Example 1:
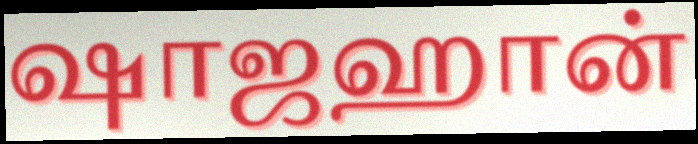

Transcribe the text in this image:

ஷாஜஹான்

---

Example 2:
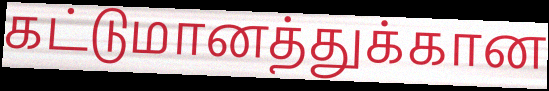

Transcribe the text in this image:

கட்டுமானத்துக்கான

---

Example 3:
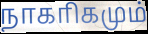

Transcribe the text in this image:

நாகரிகமும்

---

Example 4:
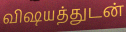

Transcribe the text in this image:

விஷயத்துடன்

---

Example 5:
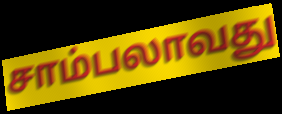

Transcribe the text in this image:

சாம்பலாவது